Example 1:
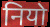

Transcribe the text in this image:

नियो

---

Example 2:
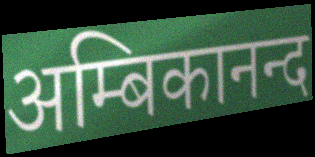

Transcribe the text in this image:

अम्बिकानन्द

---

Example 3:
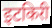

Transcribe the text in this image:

इटकिरी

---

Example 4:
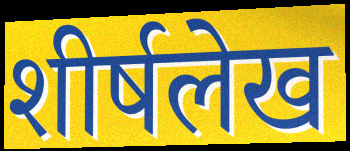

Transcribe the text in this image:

शीर्षलेख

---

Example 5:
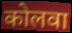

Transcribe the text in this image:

कोलवा